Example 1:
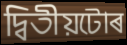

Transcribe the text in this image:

দ্বিতীয়টোৰ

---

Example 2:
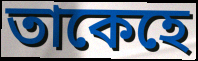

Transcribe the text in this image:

তাকেহে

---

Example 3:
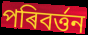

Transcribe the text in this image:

পৰিবৰ্ত্তন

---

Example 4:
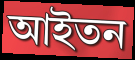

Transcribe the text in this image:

আইতন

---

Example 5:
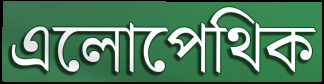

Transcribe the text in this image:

এলোপেথিক